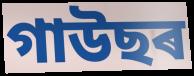
গাউছৰ